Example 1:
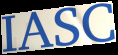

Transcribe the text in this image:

IASC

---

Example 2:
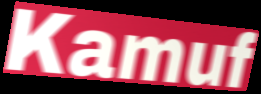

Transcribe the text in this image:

Kamuf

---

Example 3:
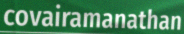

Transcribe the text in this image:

covairamanathan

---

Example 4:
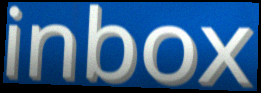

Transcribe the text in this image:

inbox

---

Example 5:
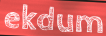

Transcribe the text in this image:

ekdum